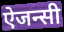
ऐजन्सी